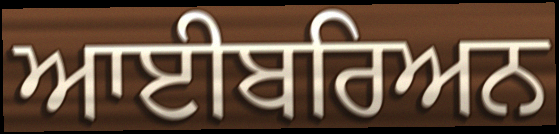
ਆਈਬਰਿਅਨ